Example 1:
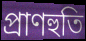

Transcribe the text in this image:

প্ৰাণহুতি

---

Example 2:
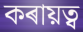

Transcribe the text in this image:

কৰায়ত্ব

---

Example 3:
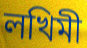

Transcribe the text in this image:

লখিমী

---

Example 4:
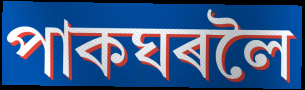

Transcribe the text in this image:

পাকঘৰলৈ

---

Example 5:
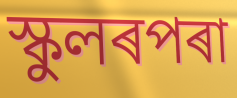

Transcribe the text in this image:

স্কুলৰপৰা